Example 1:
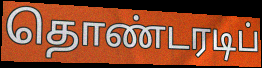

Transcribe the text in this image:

தொண்டரடிப்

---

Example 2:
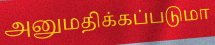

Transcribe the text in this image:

அனுமதிக்கப்படுமா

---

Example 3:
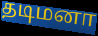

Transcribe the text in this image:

தடிமனா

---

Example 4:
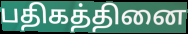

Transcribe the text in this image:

பதிகத்தினை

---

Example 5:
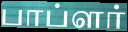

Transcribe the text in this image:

பாப்ளர்